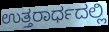
ಉತ್ತರಾರ್ಧದಲ್ಲಿ